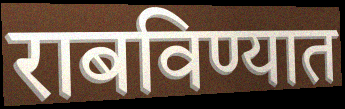
राबविण्‍यात